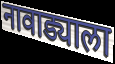
नावाड्याला